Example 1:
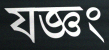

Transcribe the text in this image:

যজ্ঞং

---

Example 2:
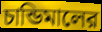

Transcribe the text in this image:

চান্ডিমালের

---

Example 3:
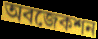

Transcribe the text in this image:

অবজেকশন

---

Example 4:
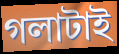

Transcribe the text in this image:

গলাটাই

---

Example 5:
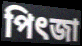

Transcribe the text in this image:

পিৎজা